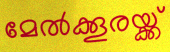
മേൽക്കൂരയ്ക്ക്